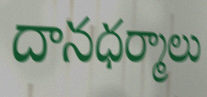
దానధర్మాలు